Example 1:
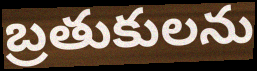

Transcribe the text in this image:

బ్రతుకులను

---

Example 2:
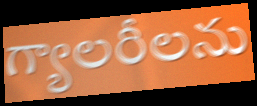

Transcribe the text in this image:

గ్యాలరీలను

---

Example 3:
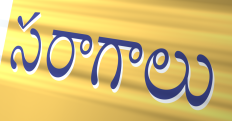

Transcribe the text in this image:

సరాగాలు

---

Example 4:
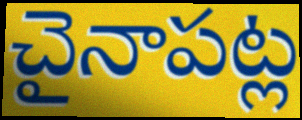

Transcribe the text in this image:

చైనాపట్ల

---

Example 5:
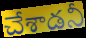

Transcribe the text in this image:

చేశాడనీ